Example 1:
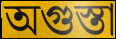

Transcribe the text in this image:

অগুস্তা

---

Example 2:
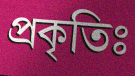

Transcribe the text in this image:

প্রকৃতিঃ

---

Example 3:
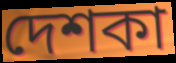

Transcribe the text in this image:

দেশকা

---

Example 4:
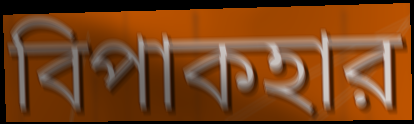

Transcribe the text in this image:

বিপাকহার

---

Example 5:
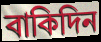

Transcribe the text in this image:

বাকিদিন